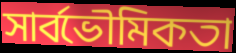
সার্বভৌমিকতা